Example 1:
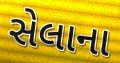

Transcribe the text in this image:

સેલાના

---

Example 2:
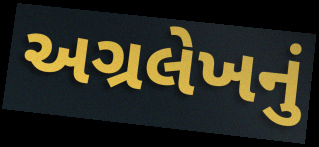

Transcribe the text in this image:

અગ્રલેખનું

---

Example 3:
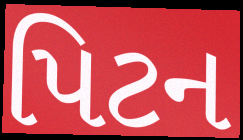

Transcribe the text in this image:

પિટન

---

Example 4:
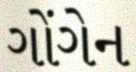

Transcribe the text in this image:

ગોંગેન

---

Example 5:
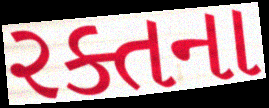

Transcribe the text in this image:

રક્તના